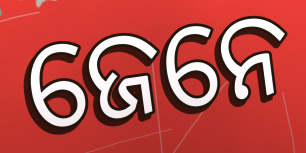
ଜେନେ